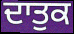
ਦਾਤੁਕ